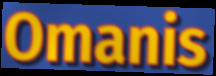
Omanis